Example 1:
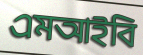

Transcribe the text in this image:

এমআইবি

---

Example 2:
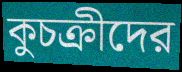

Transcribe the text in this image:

কুচক্রীদের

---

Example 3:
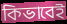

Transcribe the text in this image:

কিভাবেই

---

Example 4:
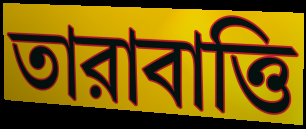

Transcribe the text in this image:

তারাবাত্তি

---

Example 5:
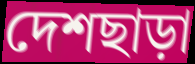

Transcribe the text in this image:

দেশছাড়া